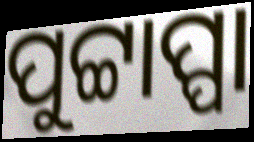
ପୁଟ୍ଟାପ୍ପା